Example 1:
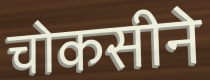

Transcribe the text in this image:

चोकसीने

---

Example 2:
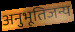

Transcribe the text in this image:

अनुभूतिजन्य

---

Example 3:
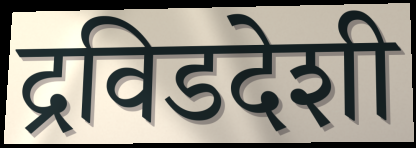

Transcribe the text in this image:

द्रविडदेशी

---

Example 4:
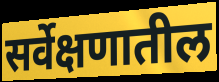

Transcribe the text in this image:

सर्वेक्षणातील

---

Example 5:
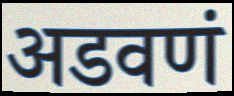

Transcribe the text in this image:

अडवणं